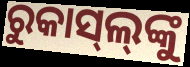
ରୁକାସ୍‍ଲ୍‌ଙ୍କୁ